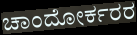
ಚಾಂದೋರ್ಕರರ